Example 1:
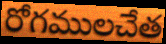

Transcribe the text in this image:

రోగములచేత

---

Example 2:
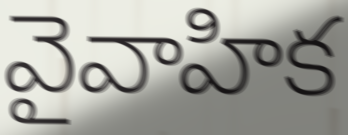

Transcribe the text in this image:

వైవాహిక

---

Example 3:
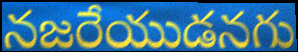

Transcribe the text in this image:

నజరేయుడనగు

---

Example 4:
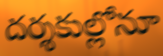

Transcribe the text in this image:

దర్శకుల్లోనూ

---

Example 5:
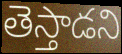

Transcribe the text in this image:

తెస్తాడని